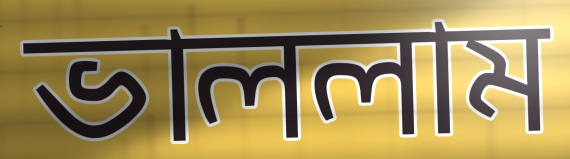
ভাললাম